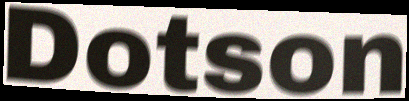
Dotson